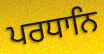
ਪਰਧਾਨਿ